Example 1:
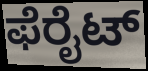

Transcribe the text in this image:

ಫೆರೈಟ್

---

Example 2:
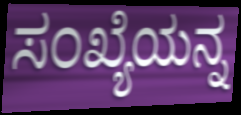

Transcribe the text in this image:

ಸಂಖ್ಯೆಯನ್ನ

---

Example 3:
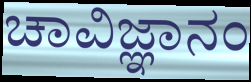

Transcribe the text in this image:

ಚಾವಿಜ್ಞಾನಂ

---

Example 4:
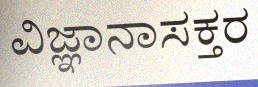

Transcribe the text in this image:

ವಿಜ್ಞಾನಾಸಕ್ತರ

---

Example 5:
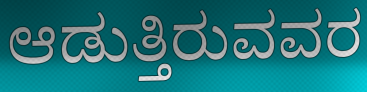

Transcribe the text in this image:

ಆಡುತ್ತಿರುವವರ